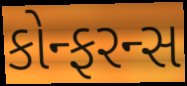
કોન્ફરન્સ